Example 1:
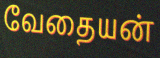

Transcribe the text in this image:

வேதையன்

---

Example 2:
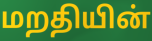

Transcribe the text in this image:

மறதியின்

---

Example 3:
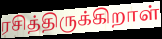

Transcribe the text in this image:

ரசித்திருக்கிறாள்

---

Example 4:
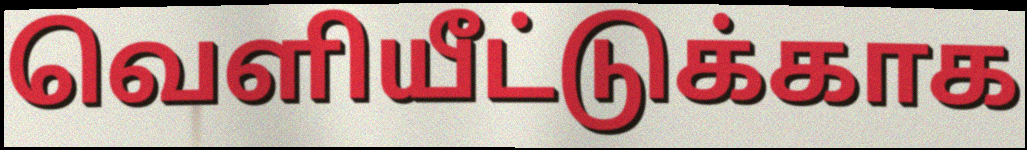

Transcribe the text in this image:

வெளியீட்டுக்காக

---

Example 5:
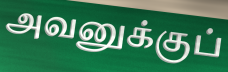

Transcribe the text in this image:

அவனுக்குப்